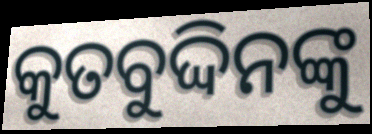
କୁତବୁଦ୍ଦିନଙ୍କୁ